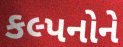
કલ્પનોને